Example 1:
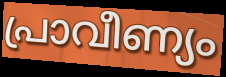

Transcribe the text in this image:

പ്രാവീണ്യം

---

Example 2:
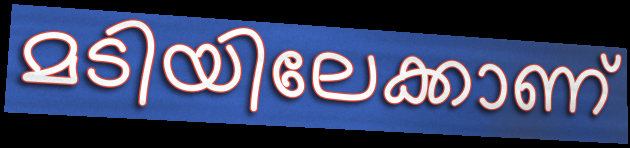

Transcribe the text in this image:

മടിയിലേക്കാണ്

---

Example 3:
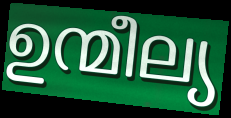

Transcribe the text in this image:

ഉന്മീല്യ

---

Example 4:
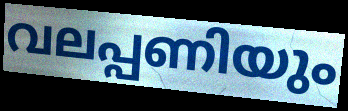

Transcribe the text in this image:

വലപ്പണിയും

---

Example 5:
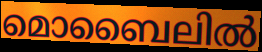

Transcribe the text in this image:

മൊബൈലിൽ